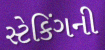
સ્ટેકિંગની